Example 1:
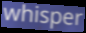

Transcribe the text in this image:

whisper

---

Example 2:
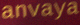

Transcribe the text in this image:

anvaya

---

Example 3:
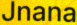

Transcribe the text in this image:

Jnana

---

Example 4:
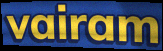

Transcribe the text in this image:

vairam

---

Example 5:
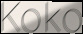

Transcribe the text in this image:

Koko